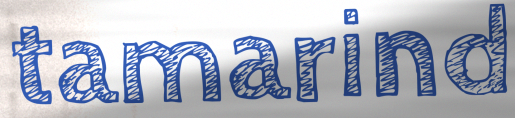
tamarind